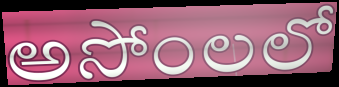
అసోంలలో